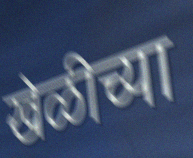
खेळीच्या